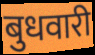
बुधवारी